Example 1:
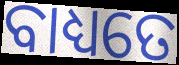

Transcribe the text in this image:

ବାଧ୍ଯତେ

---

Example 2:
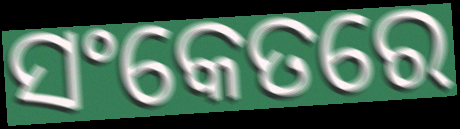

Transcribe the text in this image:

ସଂକେତରେ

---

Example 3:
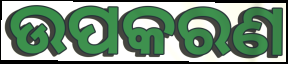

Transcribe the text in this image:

ଉପକରଣ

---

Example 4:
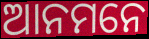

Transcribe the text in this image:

ଆନମନେ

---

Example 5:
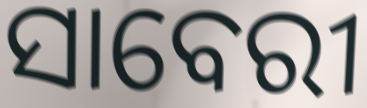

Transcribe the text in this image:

ସାବେରୀ